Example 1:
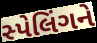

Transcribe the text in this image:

સ્પેલિંગને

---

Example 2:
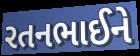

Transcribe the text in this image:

રતનભાઈને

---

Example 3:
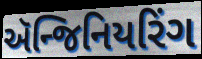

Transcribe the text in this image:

ઍન્જિનિયરિંગ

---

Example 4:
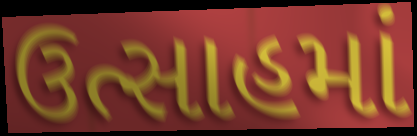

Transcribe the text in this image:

ઉત્સાહમાં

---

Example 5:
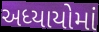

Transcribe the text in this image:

અધ્યાયોમાં